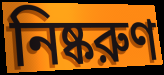
নিষ্করুণ